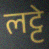
लट्टे